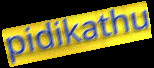
pidikathu